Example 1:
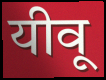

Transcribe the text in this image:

यीवू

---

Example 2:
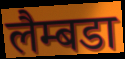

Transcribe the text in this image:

लैम्बडा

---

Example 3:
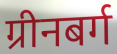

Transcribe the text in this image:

ग्रीनबर्ग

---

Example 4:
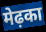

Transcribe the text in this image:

मेढ़का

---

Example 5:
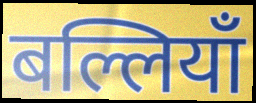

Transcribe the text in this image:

बल्लियाँ